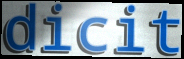
dicit